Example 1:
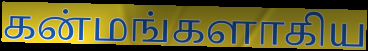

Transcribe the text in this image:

கன்மங்களாகிய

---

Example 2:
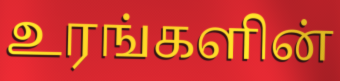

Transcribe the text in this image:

உரங்களின்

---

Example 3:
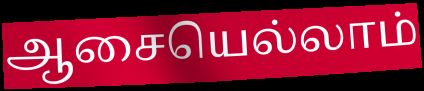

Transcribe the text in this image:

ஆசையெல்லாம்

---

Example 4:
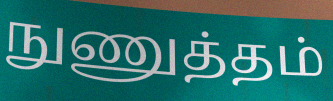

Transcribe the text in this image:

நுணுத்தம்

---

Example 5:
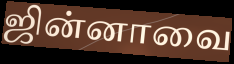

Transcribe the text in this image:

ஜின்னாவை